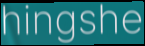
hingshe